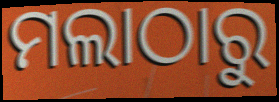
ମଲାଠାରୁ